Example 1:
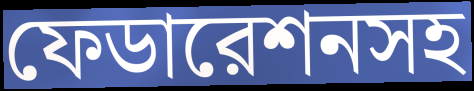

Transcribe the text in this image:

ফেডারেশনসহ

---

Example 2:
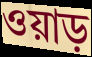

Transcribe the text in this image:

ওয়াড়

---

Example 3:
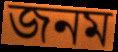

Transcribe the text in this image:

জনম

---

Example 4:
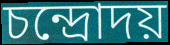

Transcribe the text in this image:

চন্দ্রোদয়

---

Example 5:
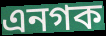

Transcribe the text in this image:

এনগক